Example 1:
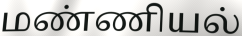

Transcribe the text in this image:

மண்ணியல்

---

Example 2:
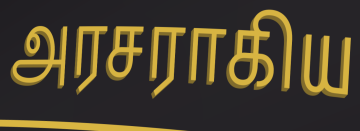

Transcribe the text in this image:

அரசராகிய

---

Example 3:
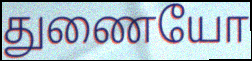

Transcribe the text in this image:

துணையோ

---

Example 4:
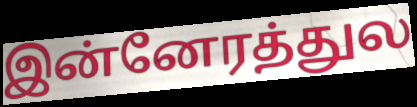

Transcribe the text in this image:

இன்னேரத்துல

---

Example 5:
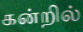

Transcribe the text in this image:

கன்றில்